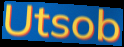
Utsob